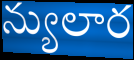
న్యులార